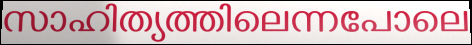
സാഹിത്യത്തിലെന്നപോലെ